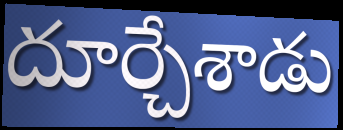
దూర్చేశాడు